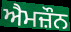
ਐਮਜ਼ੌਨ